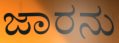
ಜಾರನು